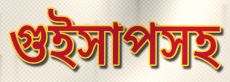
গুইসাপসহ